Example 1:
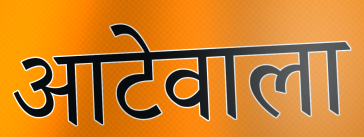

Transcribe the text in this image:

आटेवाला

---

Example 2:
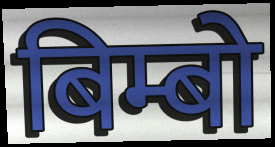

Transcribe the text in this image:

बिम्बो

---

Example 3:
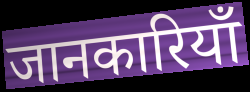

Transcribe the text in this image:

जानकारियाँ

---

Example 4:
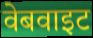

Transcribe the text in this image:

वेबवाइट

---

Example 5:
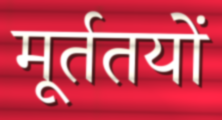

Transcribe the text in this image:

मूर्ततयों